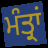
ਮੰਤ੍ਰਾਂ